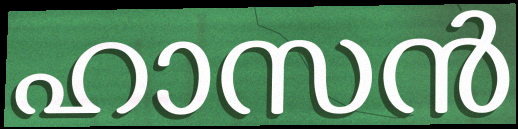
ഹാസൻ